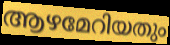
ആഴമേറിയതും